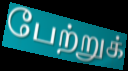
பேற்றுக்